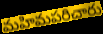
మహిమపరిచారు